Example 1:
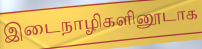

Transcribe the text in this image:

இடைநாழிகளினூடாக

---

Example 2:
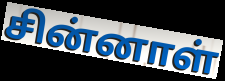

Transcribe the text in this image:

சின்னாள்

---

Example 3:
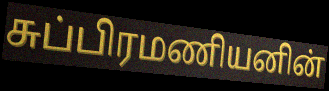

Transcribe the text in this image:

சுப்பிரமணியனின்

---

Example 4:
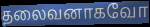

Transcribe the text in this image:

தலைவனாகவோ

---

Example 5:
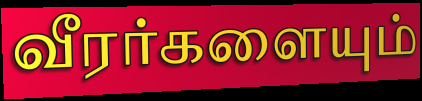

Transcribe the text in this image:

வீரர்களையும்